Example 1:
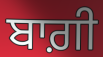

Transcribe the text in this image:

ਬਾਗ਼ੀ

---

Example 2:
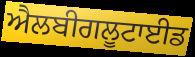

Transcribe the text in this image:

ਐਲਬੀਗਲੂਟਾਈਡ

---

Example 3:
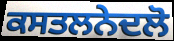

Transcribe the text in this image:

ਕਸਤਲਨੇਦਲੋ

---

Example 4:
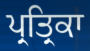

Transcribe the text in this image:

ਪ੍ਰਤ੍ਰਿਕਾ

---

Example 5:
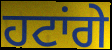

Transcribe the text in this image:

ਹਟਾਂਗੇ